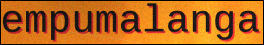
empumalanga